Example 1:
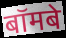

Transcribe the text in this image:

बॉमबे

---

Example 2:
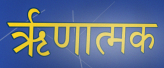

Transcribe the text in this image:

ऋृणात्मक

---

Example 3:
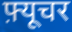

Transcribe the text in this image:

फ़्यूचर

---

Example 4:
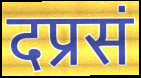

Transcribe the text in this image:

दप्रसं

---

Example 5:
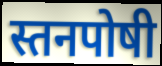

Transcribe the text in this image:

स्तनपोषी